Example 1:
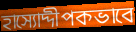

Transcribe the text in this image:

হাস্যোদ্দীপকভাবে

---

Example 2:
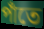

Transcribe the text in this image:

পাঁতে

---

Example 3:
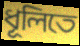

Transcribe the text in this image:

ধূলিতে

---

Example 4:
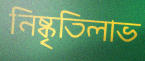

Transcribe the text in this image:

নিষ্কৃতিলাভ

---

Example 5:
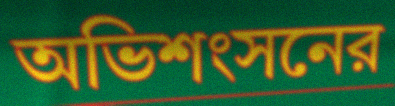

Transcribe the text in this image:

অভিশংসনের